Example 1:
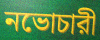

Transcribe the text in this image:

নভোচারী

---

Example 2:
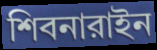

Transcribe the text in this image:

শিবনারাইন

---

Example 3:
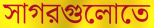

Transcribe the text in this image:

সাগরগুলোতে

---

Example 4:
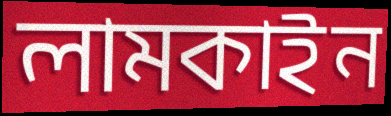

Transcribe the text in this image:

লামকাইন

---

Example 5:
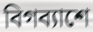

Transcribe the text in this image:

বিগব্যাশে